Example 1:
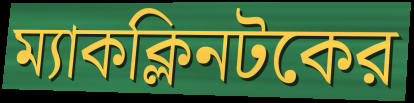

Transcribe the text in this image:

ম্যাকক্লিনটকের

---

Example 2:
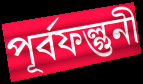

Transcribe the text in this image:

পূর্বফল্গুনী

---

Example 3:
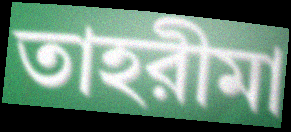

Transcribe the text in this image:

তাহরীমা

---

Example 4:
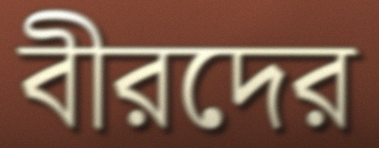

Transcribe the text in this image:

বীরদের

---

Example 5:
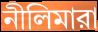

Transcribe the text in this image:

নীলিমারা